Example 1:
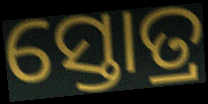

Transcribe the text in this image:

ସ୍ତୋତ୍ର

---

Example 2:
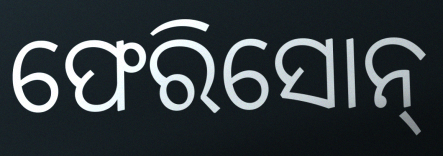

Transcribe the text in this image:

ଫେରିସୋନ୍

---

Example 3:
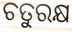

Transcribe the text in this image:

ଚତୁରକ୍ଷ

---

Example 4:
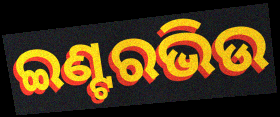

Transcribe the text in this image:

ଇଣ୍ଟରଭିଉ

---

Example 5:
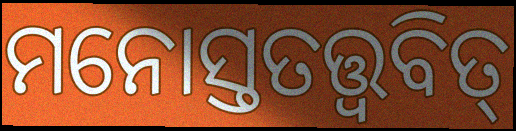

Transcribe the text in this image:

ମନୋସ୍ତତତ୍ତ୍ୱବିତ୍